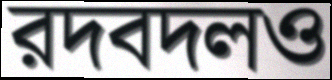
রদবদলও